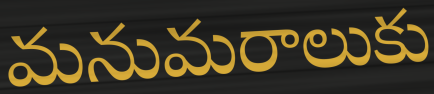
మనుమరాలుకు